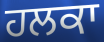
ਹਲਕਾ